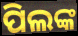
ପିଲଙ୍କ